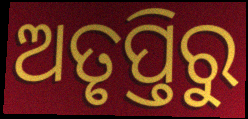
ଅତୃପ୍ତିରୁ